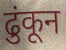
ढुंकून